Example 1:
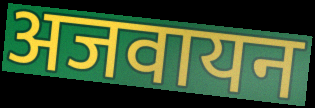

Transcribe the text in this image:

अजवायन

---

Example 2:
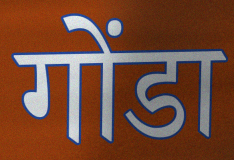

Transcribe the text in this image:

गोंडा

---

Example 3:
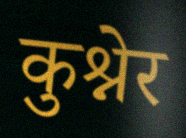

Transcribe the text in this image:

कुश्नेर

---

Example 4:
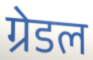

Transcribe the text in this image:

ग्रेडल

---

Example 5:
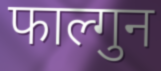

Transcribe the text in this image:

फाल्गुन